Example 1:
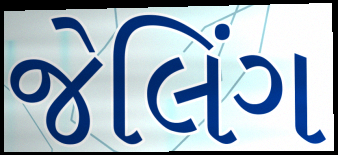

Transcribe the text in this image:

જેલિંગ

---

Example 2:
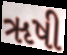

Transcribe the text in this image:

ૠષી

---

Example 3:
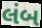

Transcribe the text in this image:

લંબ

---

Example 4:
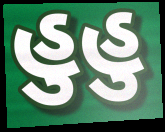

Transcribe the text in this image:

હુહુ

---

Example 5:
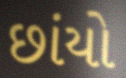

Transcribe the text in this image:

છાંયો